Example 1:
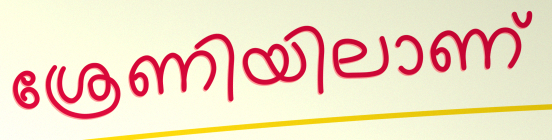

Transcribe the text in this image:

ശ്രേണിയിലാണ്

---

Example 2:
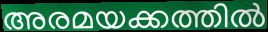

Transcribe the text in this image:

അരമയക്കത്തിൽ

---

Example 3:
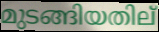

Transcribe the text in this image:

മുടങ്ങിയതില്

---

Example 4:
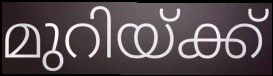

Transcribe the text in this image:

മുറിയ്ക്ക്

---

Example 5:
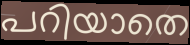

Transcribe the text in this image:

പറിയാതെ